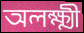
অলক্ষ্মী